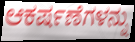
ಆಕರ್ಷಣೆಗಳನ್ನು